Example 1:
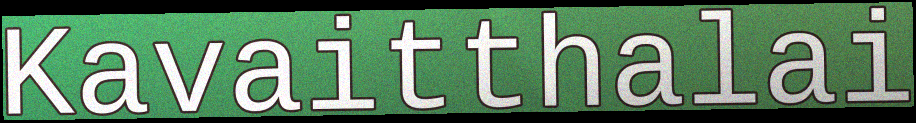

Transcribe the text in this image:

Kavaitthalai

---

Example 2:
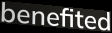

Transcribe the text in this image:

benefited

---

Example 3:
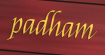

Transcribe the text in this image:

padham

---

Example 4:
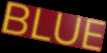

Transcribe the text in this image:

BLUE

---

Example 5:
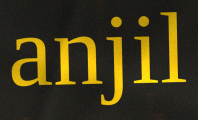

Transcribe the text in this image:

anjil